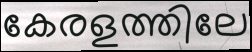
കേരളത്തിലേ